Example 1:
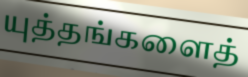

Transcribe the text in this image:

யுத்தங்களைத்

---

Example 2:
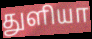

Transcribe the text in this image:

துளியா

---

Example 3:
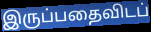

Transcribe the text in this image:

இருப்பதைவிடப்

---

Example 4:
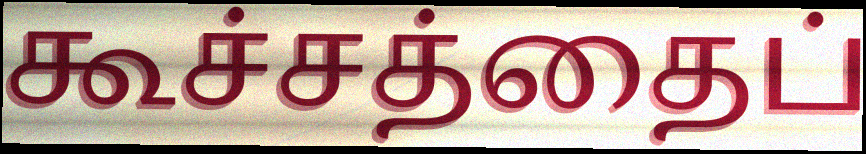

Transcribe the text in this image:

கூச்சத்தைப்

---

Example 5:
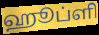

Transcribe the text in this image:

ஹூப்ளி